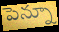
పెన్నూ